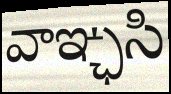
వాఞ్ఛసి